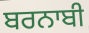
ਬਰਨਾਬੀ